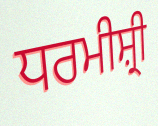
ਧਰਮੀਸ਼੍ਰੀ